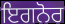
ਇਗਨੋਰ